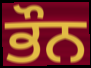
ਭੌਨ